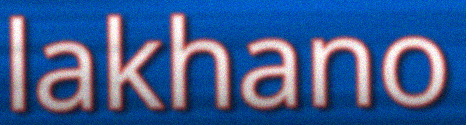
lakhano